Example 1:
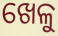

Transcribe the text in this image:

ଖେଳୁ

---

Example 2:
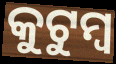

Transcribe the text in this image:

କୁଟୁମ୍ୱ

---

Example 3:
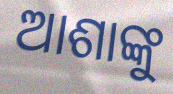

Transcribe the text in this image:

ଆଶାଙ୍କୁ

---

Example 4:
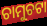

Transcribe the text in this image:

ଚାମୁଚଟା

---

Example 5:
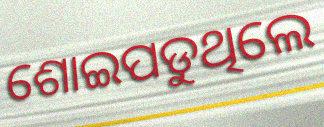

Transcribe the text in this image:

ଶୋଇପଡୁଥିଲେ